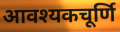
आवश्यकचूर्णि